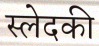
स्लेदकी